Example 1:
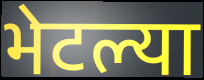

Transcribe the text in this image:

भेटल्या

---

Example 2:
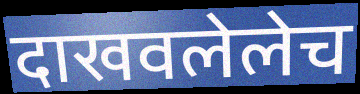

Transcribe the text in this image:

दाखवलेलेच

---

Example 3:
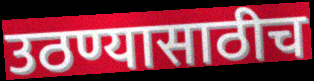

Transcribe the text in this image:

उठण्यासाठीच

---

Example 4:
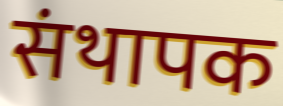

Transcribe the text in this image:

संथापक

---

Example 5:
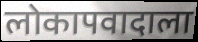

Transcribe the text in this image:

लोकापवादाला